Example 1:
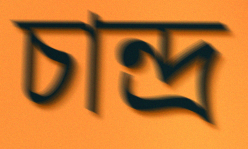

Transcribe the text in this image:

চান্দ্র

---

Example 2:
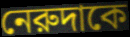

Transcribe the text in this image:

নেরুদাকে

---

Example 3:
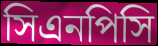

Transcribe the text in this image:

সিএনপিসি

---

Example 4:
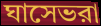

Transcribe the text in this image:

ঘাসেভরা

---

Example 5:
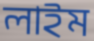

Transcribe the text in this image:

লাইম